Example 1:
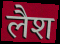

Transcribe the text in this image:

लैश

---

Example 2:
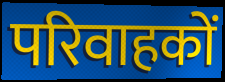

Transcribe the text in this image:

परिवाहकों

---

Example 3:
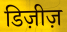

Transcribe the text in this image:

डिज़ीज़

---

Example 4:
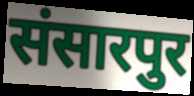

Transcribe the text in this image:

संसारपुर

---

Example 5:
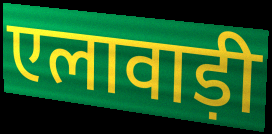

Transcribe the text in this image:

एलावाड़ी